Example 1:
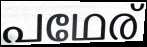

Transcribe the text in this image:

പഥേര്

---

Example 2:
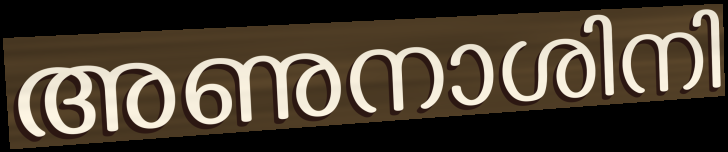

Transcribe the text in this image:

അണുനാശിനി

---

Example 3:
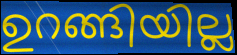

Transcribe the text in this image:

ഉറങ്ങിയില്ല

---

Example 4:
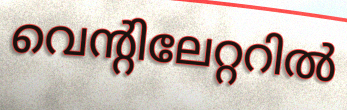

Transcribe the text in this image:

വെന്റിലേറ്ററിൽ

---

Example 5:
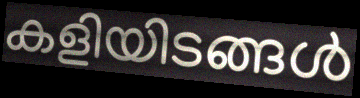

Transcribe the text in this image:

കളിയിടങ്ങൾ